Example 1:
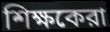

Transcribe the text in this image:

শিক্ষকেরা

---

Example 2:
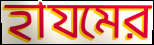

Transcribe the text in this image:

হাযমের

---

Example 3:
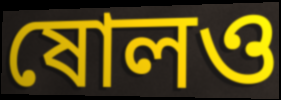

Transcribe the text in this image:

ষোলও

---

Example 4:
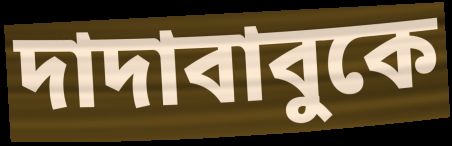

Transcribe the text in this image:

দাদাবাবুকে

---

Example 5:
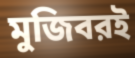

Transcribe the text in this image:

মুজিবরই